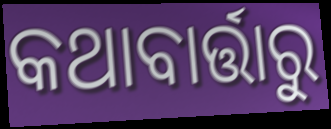
କଥାବାର୍ତ୍ତାରୁ